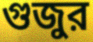
গুজুর